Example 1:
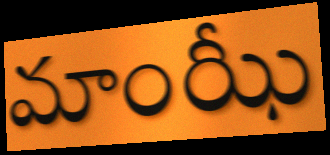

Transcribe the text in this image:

మాంఝీ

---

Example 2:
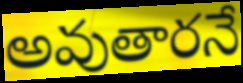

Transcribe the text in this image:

అవుతారనే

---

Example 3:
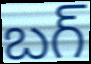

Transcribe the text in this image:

బగ్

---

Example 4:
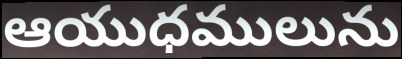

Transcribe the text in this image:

ఆయుధములును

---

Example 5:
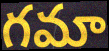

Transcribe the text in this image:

గమా